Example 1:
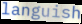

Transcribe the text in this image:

languish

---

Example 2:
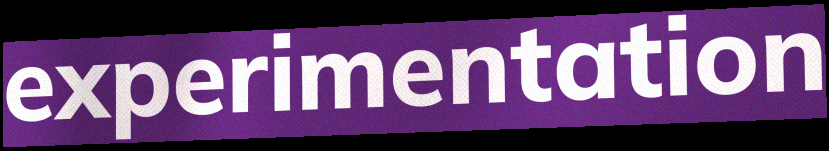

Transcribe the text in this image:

experimentation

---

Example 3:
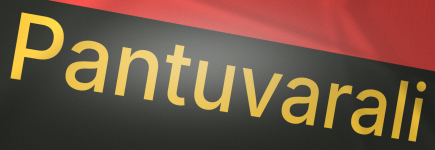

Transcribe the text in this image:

Pantuvarali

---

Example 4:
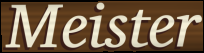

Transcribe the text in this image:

Meister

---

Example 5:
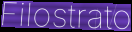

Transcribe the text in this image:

Filostrato